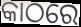
କାଠରେ